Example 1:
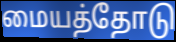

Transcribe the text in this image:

மையத்தோடு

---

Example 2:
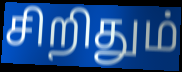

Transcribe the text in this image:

சிறிதும்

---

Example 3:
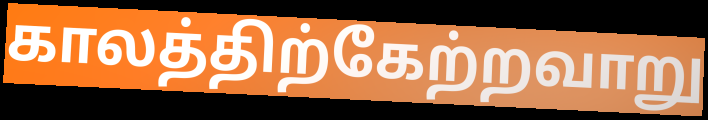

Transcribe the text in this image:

காலத்திற்கேற்றவாறு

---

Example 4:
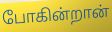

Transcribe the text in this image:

போகின்றான்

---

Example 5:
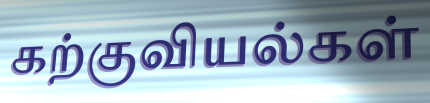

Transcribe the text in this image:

கற்குவியல்கள்